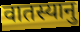
वातस्यानु